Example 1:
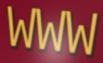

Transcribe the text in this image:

WWW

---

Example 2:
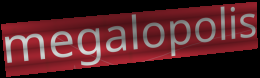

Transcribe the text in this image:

megalopolis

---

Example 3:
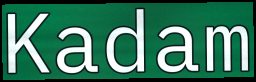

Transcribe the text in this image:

Kadam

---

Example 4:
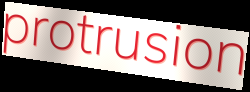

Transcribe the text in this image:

protrusion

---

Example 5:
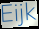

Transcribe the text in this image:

Eijk